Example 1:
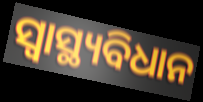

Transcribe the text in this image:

ସ୍ୱାସ୍ଥ୍ୟବିଧାନ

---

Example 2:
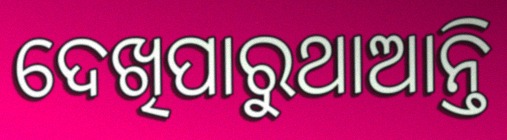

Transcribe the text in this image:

ଦେଖିପାରୁଥାଆନ୍ତି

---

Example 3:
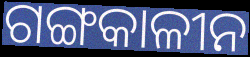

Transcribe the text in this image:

ଗଙ୍ଗକାଳୀନ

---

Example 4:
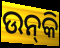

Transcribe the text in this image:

ଉନ୍‌କି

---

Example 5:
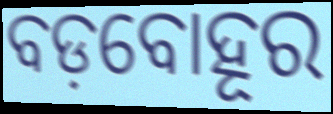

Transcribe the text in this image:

ବଡ଼ବୋହୂର